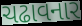
ચઢાવનાર